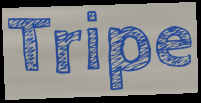
Tripe